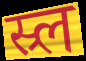
स्र्ल